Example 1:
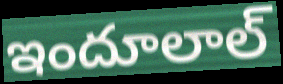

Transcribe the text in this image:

ఇందూలాల్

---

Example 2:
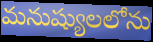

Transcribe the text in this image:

మనుష్యులలోను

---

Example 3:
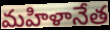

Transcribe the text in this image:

మహిళానేత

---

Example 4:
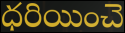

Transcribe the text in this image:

ధరియించె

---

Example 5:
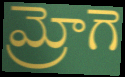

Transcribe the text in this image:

మ్రోగె